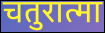
चतुरात्मा